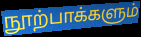
நூற்பாக்களும்